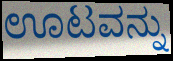
ಊಟವನ್ನು